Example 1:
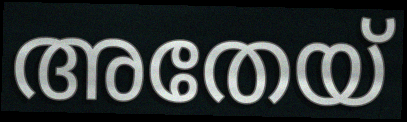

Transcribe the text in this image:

അതേയ്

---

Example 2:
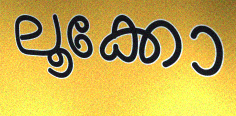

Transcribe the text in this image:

ലൂക്കോ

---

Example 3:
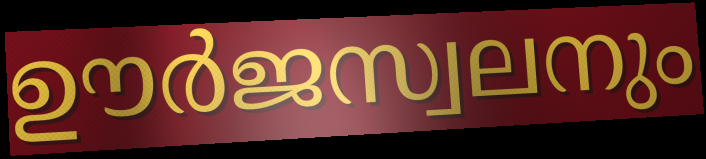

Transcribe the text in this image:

ഊർജസ്വലനും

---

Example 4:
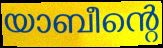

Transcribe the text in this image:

യാബീന്റെ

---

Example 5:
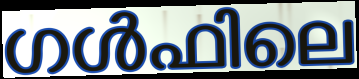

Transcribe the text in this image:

ഗൾഫിലെ